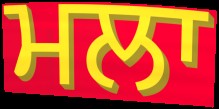
ਮਲਾ